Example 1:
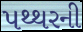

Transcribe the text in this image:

પથ્થરની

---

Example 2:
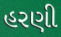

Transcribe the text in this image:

હરણી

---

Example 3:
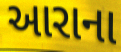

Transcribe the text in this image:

આરાના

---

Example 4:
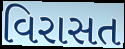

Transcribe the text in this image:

વિરાસત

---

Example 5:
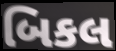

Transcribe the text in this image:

બિકલ